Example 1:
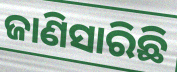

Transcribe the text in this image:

ଜାଣିସାରିଛି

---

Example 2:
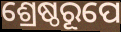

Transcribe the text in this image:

ଶ୍ରେଷ୍ଠରୂପେ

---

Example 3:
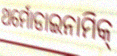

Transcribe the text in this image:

ଥର୍ମୋଡାଇନାମିକ୍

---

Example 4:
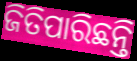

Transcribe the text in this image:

ଜିତିପାରିଛନ୍ତି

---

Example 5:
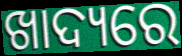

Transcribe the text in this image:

ଖାଦ୍ୟରେ